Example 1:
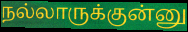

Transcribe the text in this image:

நல்லாருக்குன்னு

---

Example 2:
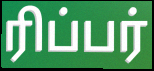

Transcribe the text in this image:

ரிப்பர்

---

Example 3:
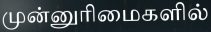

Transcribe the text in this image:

முன்னுரிமைகளில்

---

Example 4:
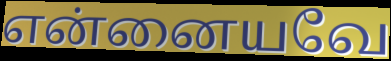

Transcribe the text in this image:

என்னையவே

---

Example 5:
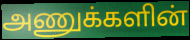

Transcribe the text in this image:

அணுக்களின்